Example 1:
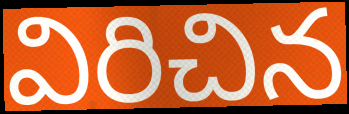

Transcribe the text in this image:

విరిచిన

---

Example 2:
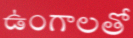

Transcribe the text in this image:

ఉంగాలతో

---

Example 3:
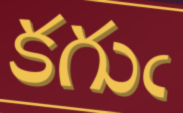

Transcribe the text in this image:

కగుఁ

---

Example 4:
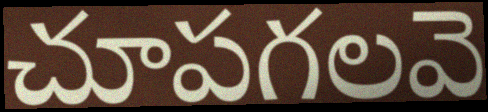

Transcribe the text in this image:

చూపగలవె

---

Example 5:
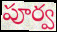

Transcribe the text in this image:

పూర్వ